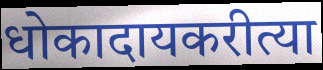
धोकादायकरीत्या